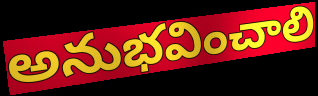
అనుభవించాలి